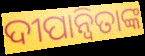
ଦୀପାନ୍ୱିତାଙ୍କ